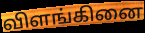
விளங்கினை